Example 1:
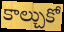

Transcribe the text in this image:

కాల్చుకో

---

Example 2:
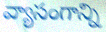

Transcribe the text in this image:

వ్యాసంగాన్ని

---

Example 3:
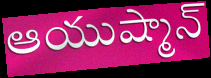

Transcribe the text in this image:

ఆయుష్మాన్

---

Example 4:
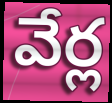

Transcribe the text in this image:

వేర్ల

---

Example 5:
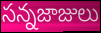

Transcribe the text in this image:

సన్నజాజులు